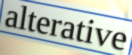
alterative